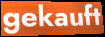
gekauft